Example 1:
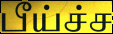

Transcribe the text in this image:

பீய்ச்ச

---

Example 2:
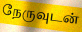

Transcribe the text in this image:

நேருவுடன்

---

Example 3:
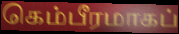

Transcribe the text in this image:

கெம்பீரமாகப்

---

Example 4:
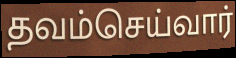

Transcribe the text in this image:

தவம்செய்வார்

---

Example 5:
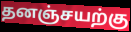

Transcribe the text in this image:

தனஞ்சயற்கு